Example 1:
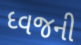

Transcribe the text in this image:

ધ્વજની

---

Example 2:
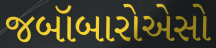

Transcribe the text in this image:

જબૉબારોએસો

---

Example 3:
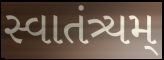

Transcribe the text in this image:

સ્વાતંત્ર્યમ્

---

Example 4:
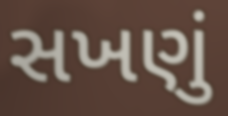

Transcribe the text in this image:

સખણું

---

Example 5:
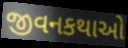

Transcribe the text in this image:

જીવનકથાઓ